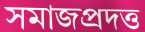
সমাজপ্রদত্ত